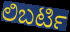
ಲಿಬರ್ಟಿ